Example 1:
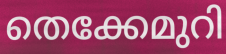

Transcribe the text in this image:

തെക്കേമുറി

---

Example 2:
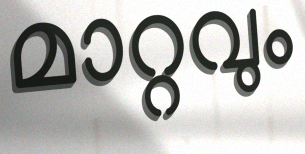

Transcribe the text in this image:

മാറ്റവും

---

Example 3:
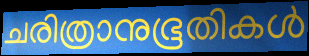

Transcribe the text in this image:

ചരിത്രാനുഭൂതികൾ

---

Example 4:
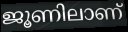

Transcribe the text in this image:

ജൂണിലാണ്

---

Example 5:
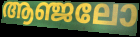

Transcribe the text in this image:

ആഞ്ജലോ